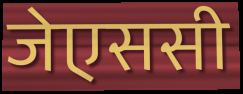
जेएससी